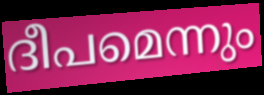
ദീപമെന്നും